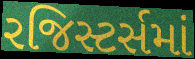
રજિસ્ટર્સમાં